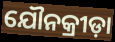
ଯୌନକ୍ରୀଡ଼ା